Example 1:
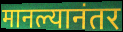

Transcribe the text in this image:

मानल्यानंतर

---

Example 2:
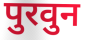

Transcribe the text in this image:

पुरवुन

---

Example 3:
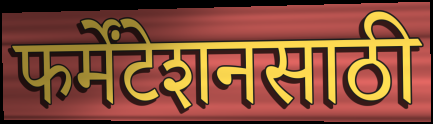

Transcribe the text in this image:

फर्मेंटेशनसाठी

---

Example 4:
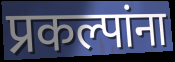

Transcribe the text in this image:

प्रकल्पांना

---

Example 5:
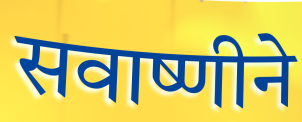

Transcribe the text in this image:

सवाष्णीने